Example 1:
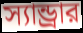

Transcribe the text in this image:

স্যান্ড্রার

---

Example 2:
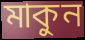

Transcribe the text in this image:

মাকুন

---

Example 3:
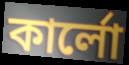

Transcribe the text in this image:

কার্লো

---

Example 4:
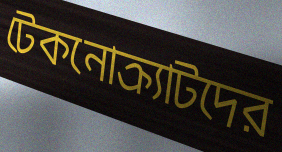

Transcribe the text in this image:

টেকনোক্র্যাটদের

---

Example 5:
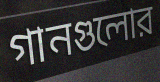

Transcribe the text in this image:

গানগুলোর